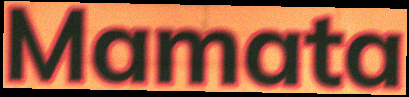
Mamata